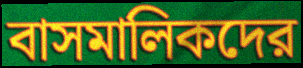
বাসমালিকদের